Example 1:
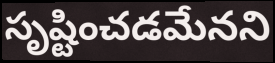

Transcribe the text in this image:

సృష్టించడమేనని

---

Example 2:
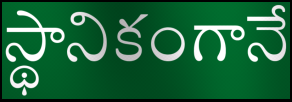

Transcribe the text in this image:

స్థానికంగానే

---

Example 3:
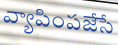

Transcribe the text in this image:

వ్యాపింపజేసే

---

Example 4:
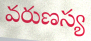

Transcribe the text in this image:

వరుణస్య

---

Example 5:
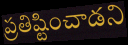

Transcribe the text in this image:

ప్రతిష్టించాడని